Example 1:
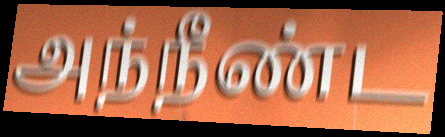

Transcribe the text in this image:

அந்நீண்ட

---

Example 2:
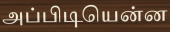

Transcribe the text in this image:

அப்பிடியென்ன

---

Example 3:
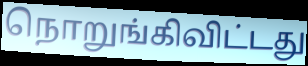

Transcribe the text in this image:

நொறுங்கிவிட்டது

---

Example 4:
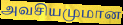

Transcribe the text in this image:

அவசியமுமான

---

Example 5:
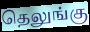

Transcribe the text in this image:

தெலுங்கு